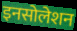
इनसोलेशन